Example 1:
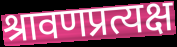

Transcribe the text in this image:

श्रावणप्रत्यक्ष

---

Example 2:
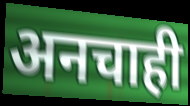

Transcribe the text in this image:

अनचाही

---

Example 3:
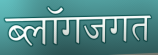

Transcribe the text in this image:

ब्लॉगजगत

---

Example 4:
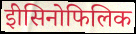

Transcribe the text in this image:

ईोसिनोफिलिक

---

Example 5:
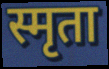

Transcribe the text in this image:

स्मृता